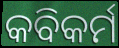
କବିକର୍ମ